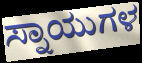
ಸ್ನಾಯುಗಳ